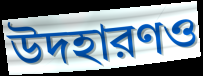
উদহারণও